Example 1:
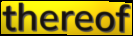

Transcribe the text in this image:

thereof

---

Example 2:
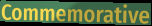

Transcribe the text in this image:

Commemorative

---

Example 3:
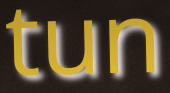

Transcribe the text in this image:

tun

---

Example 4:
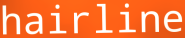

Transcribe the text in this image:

hairline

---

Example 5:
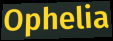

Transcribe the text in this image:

Ophelia